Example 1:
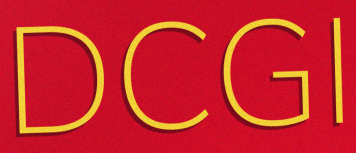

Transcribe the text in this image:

DCGI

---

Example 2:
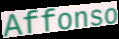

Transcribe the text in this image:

Affonso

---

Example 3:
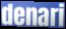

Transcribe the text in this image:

denari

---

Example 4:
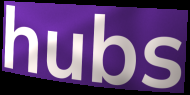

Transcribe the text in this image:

hubs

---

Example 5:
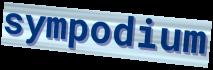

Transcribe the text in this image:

sympodium